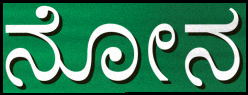
ನೋನ